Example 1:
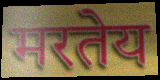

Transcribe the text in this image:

मरतेय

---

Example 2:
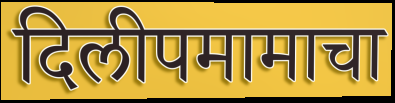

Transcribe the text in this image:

दिलीपमामाचा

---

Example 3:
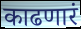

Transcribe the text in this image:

काढणारं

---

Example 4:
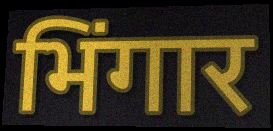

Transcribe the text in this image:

भिंगार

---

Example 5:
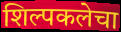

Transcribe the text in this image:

शिल्पकलेचा